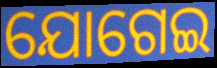
ଯୋଗେଇ